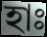
হাঃ